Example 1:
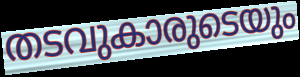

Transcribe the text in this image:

തടവുകാരുടെയും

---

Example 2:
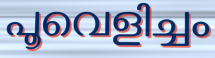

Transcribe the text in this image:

പൂവെളിച്ചം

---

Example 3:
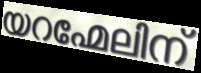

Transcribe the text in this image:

യറഹ്മേലിന്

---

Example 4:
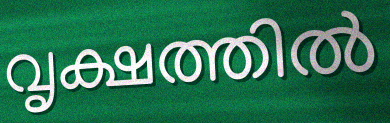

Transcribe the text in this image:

വൃക്ഷത്തിൽ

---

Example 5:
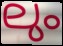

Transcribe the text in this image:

ലും